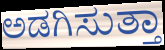
ಅಡಗಿಸುತ್ತಾ